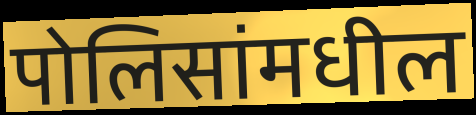
पोलिसांमधील